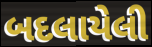
બદલાયેલી